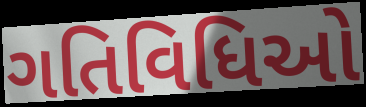
ગતિવિધિઓ